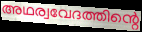
അഥര്വവേദത്തിന്റെ